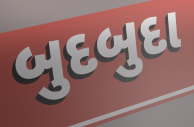
બુદબુદા